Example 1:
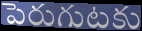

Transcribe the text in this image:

పెరుగుటకు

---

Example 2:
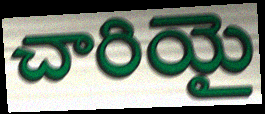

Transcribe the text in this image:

చారియై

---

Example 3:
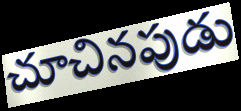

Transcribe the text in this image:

చూచినపుడు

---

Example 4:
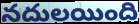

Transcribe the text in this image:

నదులయింది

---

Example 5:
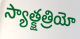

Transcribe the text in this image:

స్యాత్క్షత్రియో